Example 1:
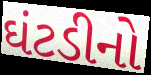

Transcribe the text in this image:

ઘંટડીનો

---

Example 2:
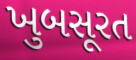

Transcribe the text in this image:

ખુબસૂરત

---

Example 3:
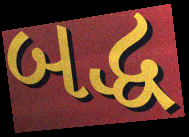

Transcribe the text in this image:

બદ્ધ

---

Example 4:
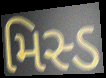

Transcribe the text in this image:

મિસ્ડ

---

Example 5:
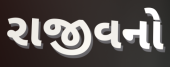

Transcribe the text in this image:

રાજીવનો